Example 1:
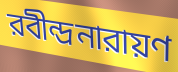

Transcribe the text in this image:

রবীন্দ্রনারায়ণ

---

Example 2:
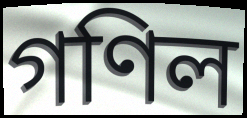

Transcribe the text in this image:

গণিল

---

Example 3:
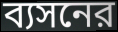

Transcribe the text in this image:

ব্যসনের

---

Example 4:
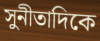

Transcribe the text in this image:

সুনীতাদিকে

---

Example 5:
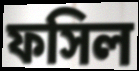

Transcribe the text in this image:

ফসিল